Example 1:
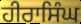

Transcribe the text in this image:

ਹੀਰਾਸਿੰਘ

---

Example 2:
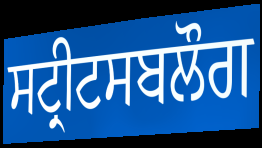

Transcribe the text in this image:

ਸਟ੍ਰੀਟਸਬਲੌਗ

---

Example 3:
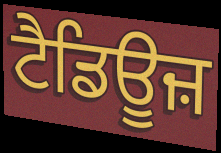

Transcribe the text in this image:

ਟੈਡਿਊਜ਼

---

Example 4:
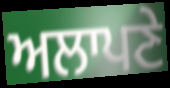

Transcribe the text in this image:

ਅਲਾਪਣੇ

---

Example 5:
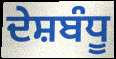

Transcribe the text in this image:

ਦੇਸ਼ਬੰਧੂ